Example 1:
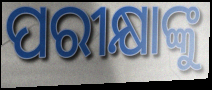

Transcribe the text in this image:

ପରୀକ୍ଷାଙ୍କୁ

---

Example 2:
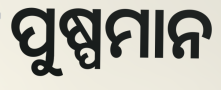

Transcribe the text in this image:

ପୁଷ୍ପମାନ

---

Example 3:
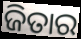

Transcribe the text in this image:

ଜିତାର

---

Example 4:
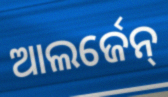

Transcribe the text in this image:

ଆଲର୍ଜେନ୍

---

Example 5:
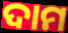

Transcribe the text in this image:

ଦାମ